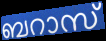
ബറാസ്